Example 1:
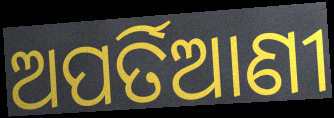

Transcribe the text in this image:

ଅପର୍ତିଆଣୀ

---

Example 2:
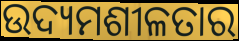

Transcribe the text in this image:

ଉଦ୍ୟମଶୀଳତାର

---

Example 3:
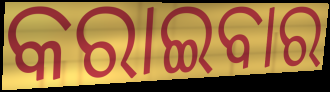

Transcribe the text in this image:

କରାଇବାର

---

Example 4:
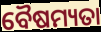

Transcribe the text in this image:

ବୈଷମ୍ୟତା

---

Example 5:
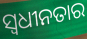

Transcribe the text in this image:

ସ୍ବଧୀନତାର